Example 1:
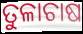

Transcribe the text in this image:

ତୁଳାଚାଷ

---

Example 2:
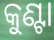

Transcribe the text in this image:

କୁଣ୍ଟା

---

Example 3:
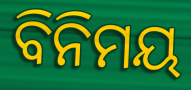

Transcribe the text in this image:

ବିନିମୟ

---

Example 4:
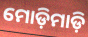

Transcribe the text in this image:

ମୋଡ଼ିମାଡ଼ି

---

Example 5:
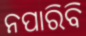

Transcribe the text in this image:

ନପାରିବି